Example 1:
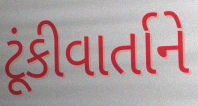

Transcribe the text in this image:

ટૂંકીવાર્તાને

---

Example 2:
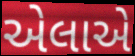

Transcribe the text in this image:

એલાએ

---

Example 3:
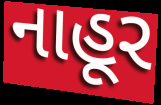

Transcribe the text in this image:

નાહૂર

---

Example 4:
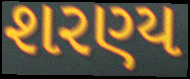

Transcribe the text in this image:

શરણ્ય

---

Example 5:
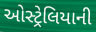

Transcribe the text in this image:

ઓસ્ટ્રેલિયાની